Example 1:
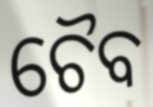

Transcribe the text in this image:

ଚୈବ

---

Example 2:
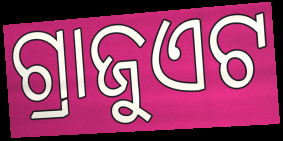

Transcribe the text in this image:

ଗ୍ରାଜୁଏଟ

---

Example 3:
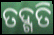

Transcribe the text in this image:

ତଦ୍ଗତି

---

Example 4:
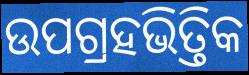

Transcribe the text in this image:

ଉପଗ୍ରହଭିତ୍ତିକ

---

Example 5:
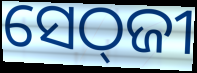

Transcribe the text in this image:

ସେଠ୍‌ଜୀ